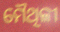
ମୈଥିଳୀ